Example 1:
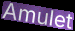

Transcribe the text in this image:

Amulet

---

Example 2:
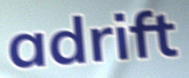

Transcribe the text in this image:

adrift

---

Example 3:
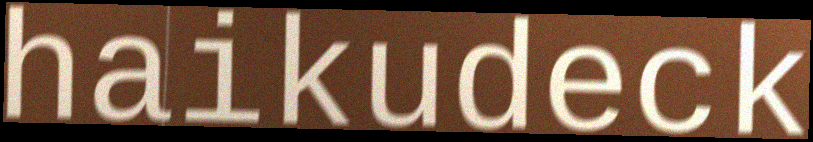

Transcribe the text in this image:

haikudeck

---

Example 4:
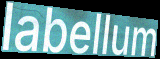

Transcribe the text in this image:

labellum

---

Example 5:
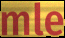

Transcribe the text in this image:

mle